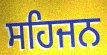
ਸਹਿਜਨ